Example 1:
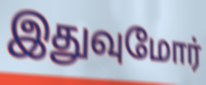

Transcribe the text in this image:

இதுவுமோர்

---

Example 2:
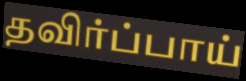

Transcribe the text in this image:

தவிர்ப்பாய்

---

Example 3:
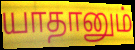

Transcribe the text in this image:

யாதானும்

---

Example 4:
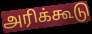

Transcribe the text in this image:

அரிக்கூடு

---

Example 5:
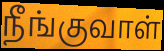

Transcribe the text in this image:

நீங்குவாள்